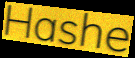
Hashe